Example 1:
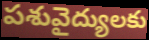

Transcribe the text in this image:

పశువైద్యులకు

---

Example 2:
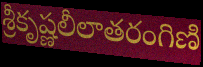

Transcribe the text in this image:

శ్రీకృష్ణలీలాతరంగిణి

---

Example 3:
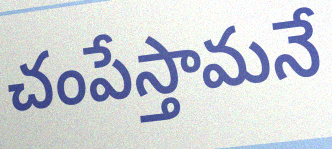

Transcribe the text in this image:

చంపేస్తామనే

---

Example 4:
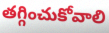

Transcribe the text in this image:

తగ్గించుకోవాలి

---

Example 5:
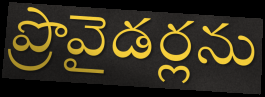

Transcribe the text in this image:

ప్రొవైడర్లను